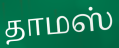
தாமஸ்